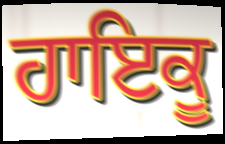
ਹਾਇਕੂ